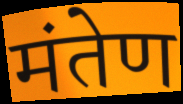
मंतेण